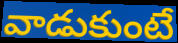
వాడుకుంటే